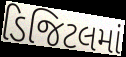
ડિજિટલમાં